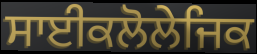
ਸਾਈਕਲੋਲੇਜਿਕ